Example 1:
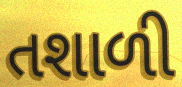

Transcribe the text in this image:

તશાળી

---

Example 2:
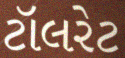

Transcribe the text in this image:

ટૉલરેટ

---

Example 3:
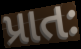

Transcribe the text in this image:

પ્રાતઃ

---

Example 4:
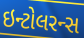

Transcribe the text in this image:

ઇન્ટોલરન્સ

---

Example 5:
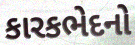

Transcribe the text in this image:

કારકભેદનો